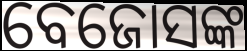
ବେଜୋସଙ୍କ